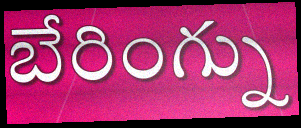
బేరింగ్ను